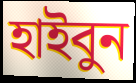
হাইবুন